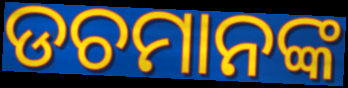
ଡଚମାନଙ୍କ